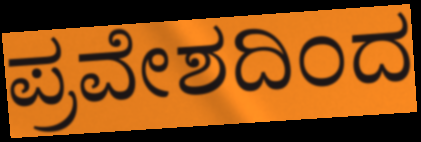
ಪ್ರವೇಶದಿಂದ